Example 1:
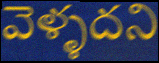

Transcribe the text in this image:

వెళ్ళదని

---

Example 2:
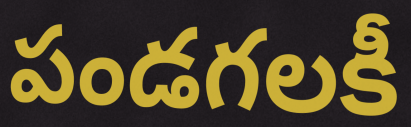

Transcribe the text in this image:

పండగలకీ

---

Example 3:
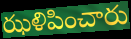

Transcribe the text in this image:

ఝళిపించారు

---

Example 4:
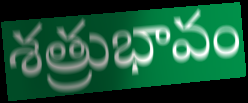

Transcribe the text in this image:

శత్రుభావం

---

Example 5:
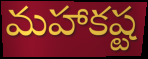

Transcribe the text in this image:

మహాకష్ట